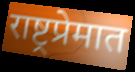
राष्ट्रप्रेमात